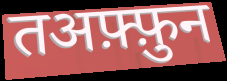
तअफ़्फ़ुन